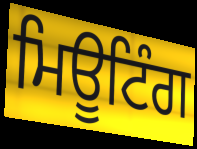
ਮਿਊਟਿੰਗ